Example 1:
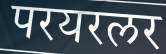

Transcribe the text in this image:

परयरलर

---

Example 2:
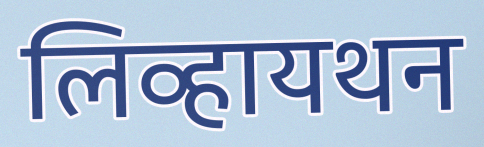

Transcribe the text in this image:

लिव्हायथन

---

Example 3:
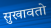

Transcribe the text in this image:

सुखावतो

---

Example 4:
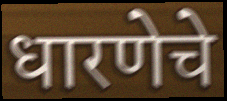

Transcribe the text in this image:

धारणेचे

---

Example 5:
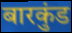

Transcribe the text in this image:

बारकुंड